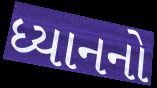
ધ્યાનનો